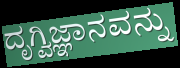
ದೃಗ್ವಿಜ್ಞಾನವನ್ನು